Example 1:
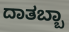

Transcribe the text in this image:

ದಾತಬ್ಬಾ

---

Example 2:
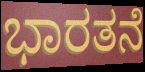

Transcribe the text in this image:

ಭಾರತನೆ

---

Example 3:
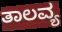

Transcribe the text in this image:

ತಾಲವ್ಯ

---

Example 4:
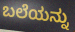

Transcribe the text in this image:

ಬಲೆಯನ್ನು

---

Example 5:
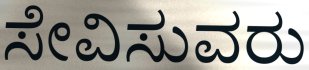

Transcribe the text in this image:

ಸೇವಿಸುವರು